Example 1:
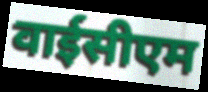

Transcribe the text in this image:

वाईसीएम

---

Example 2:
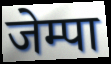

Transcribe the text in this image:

जेम्पा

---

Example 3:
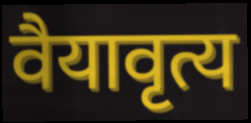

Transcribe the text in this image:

वैयावृत्य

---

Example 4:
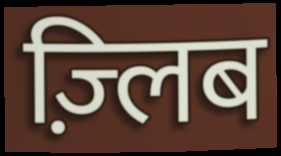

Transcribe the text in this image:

ज़्लिब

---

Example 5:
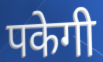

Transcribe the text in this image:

पकेगी